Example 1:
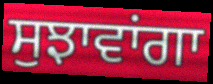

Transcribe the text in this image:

ਸੁਝਾਵਾਂਗਾ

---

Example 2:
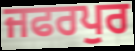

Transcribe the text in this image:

ਜਫਰਪੁਰ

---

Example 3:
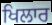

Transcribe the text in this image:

ਖਿਲਾਰ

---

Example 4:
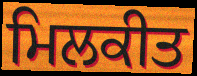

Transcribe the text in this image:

ਮਿਲਕੀਤ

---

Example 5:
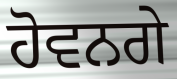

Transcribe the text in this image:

ਹੋਵਨਗੇ